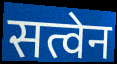
सत्वेन